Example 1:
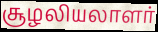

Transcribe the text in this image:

சூழலியலாளர்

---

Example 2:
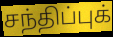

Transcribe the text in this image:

சந்திப்புக்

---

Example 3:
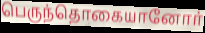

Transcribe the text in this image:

பெருந்தொகையானோர்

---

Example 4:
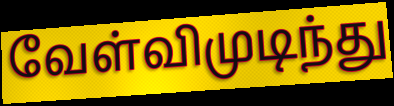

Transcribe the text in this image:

வேள்விமுடிந்து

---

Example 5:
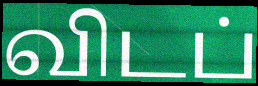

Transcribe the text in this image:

விடப்